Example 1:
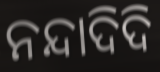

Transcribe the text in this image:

ନନ୍ଦାଦିଦି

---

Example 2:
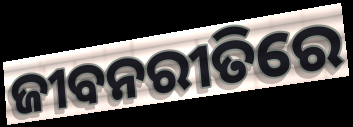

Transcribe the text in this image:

ଜୀବନରୀତିରେ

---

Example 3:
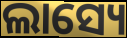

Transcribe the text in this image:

ଲାସ୍ୟେ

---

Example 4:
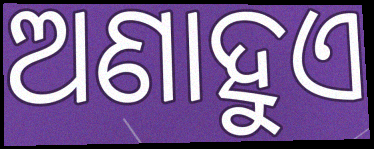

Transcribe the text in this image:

ଅଣାହୁଏ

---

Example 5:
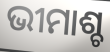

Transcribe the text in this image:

ଭୀମାଶ୍ଚ